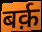
बर्क़